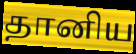
தானிய